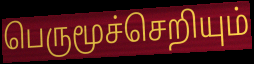
பெருமூச்செறியும்